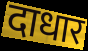
दाधार